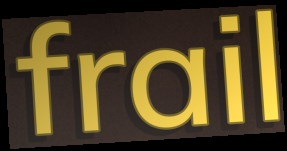
frail